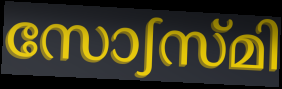
സോഽസ്മി